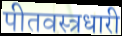
पीतवस्त्रधारी